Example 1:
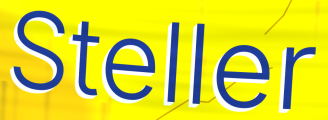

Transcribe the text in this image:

Steller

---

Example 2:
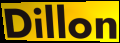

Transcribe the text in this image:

Dillon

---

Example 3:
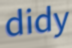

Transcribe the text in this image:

didy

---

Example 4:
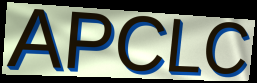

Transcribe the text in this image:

APCLC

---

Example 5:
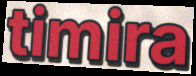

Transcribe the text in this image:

timira